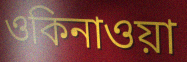
ওকিনাওয়া